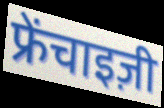
फ्रेंचाइज़ी